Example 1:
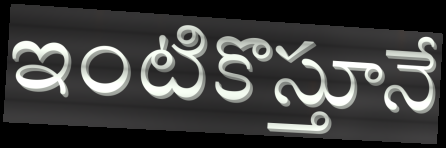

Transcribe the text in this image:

ఇంటికొస్తూనే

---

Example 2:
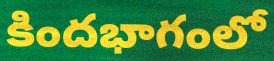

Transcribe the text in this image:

కిందభాగంలో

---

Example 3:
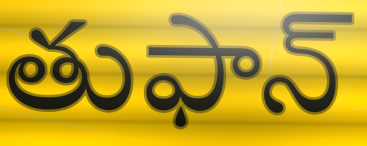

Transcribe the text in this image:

తుఫాన్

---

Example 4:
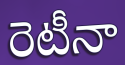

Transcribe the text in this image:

రెటీనా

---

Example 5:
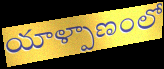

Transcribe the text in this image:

యాళ్పాణంలో